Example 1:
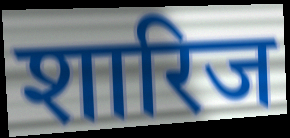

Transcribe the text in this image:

शारिज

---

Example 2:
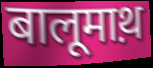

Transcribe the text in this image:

बालूमाथ़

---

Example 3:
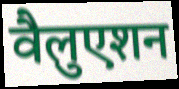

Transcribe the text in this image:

वैलुएशन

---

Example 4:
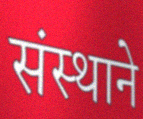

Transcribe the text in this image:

संस्थाने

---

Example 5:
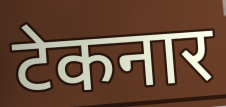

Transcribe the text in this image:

टेकनार